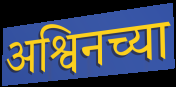
अश्विनच्या